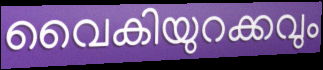
വൈകിയുറക്കവും